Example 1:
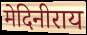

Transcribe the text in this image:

मेदिनीराय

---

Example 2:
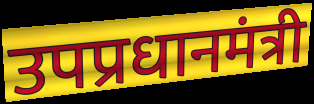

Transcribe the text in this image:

उपप्रधानमंत्री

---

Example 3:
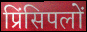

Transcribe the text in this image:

प्रिंसिपलों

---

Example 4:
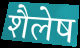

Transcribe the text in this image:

शैलेष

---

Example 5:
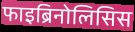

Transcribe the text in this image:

फाइब्रिनोलिसिस